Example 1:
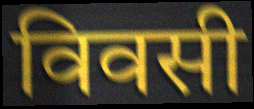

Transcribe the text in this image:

विवसी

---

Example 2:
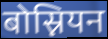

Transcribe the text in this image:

बोस्नियन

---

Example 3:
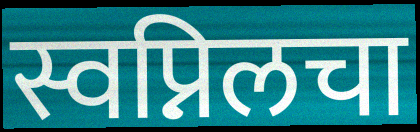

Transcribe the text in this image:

स्वप्निलचा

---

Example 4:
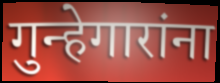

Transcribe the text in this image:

गुन्हेगारांना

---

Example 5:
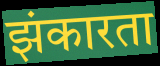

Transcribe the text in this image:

झंकारता